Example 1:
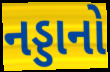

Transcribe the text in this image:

નડ્ડાનો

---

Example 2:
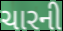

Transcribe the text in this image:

ચારની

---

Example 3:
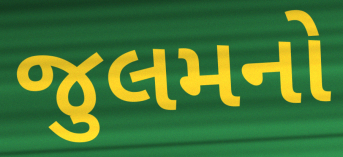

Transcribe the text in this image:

જુલમનો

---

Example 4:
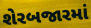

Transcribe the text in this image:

શેરબજારમાં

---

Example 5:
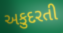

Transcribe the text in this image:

અકુદરતી